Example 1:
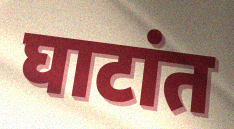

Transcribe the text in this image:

घाटांत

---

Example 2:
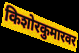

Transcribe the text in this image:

किशोरकुमारवर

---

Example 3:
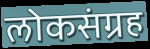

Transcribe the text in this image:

लोकसंग्रह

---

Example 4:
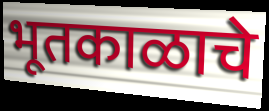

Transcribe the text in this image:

भूतकाळाचे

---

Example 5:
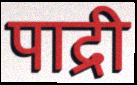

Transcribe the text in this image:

पाद्री